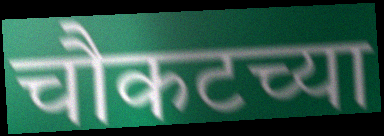
चौकटच्या